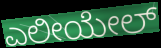
ಎಲೀಯೇಲ್